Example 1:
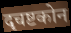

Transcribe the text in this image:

दृचष्टकोन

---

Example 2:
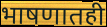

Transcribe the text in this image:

भाषणातही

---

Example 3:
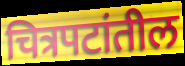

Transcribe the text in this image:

चित्रपटांतील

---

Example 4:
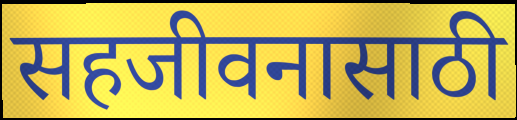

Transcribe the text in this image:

सहजीवनासाठी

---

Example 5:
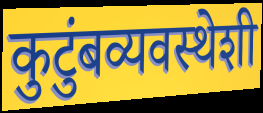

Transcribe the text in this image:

कुटुंबव्यवस्थेशी